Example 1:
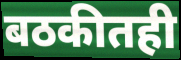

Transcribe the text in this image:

बठकीतही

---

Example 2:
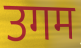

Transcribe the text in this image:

उगम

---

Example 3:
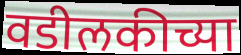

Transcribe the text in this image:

वडीलकीच्या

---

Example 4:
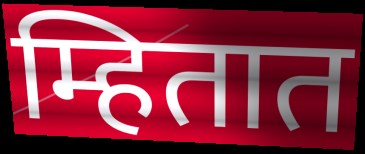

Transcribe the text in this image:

म्हितात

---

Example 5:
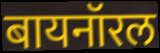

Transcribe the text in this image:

बायनॉरल